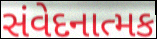
સંવેદનાત્મક